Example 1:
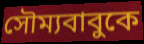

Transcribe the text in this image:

সৌম্যবাবুকে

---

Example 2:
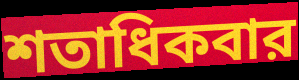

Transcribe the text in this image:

শতাধিকবার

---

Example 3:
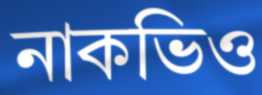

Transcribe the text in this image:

নাকভিও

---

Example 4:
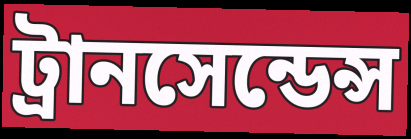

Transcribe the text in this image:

ট্রানসেন্ডেন্স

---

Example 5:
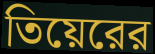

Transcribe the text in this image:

তিয়েরের